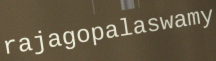
rajagopalaswamy